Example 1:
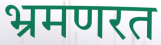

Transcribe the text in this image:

भ्रमणरत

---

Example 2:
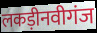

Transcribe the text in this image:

लकड़ीनवीगंज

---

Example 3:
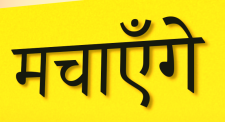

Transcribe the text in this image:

मचाएँगे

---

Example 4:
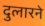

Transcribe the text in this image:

दुलारने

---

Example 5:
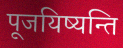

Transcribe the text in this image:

पूजयिष्यन्ति